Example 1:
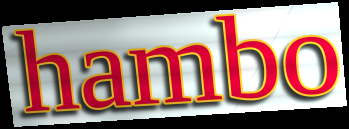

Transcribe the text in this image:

hambo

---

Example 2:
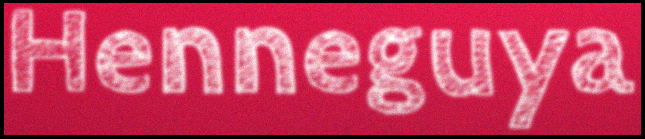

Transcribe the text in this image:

Henneguya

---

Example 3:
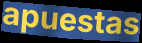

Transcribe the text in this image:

apuestas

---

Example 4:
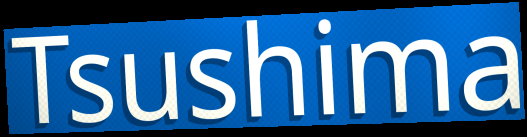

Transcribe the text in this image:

Tsushima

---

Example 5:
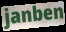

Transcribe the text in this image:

janben